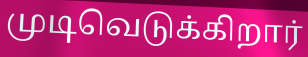
முடிவெடுக்கிறார்